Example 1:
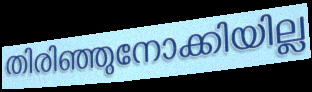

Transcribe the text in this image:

തിരിഞ്ഞുനോക്കിയില്ല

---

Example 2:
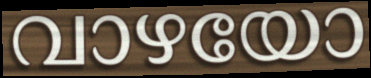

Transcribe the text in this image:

വാഴയോ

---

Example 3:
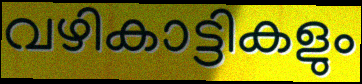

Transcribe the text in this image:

വഴികാട്ടികളും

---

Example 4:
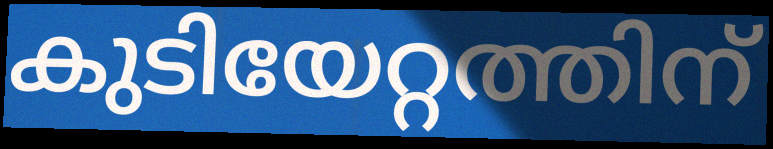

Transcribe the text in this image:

കുടിയേറ്റത്തിന്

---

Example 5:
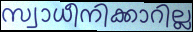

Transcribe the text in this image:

സ്വാധീനിക്കാറില്ല